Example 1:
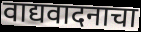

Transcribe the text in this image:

वाद्यवादनाचा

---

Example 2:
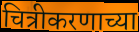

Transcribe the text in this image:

चित्रीकरणाच्या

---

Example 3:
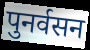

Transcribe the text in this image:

पुनर्वसन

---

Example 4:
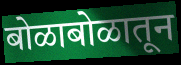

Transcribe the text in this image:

बोळाबोळातून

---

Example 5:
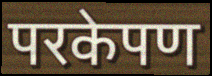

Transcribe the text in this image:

परकेपण